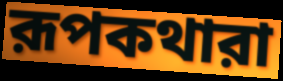
রূপকথারা